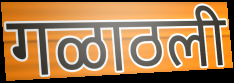
गळाठली